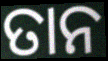
ତାନ